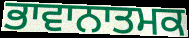
ਭਾਵਾਨਾਤਮਕ